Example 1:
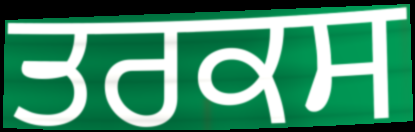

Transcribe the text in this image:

ਤਰਕਸ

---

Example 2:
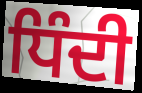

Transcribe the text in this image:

ਧਿੰਦੀ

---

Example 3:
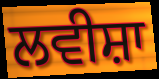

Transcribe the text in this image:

ਲਵੀਸ਼ਾ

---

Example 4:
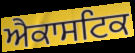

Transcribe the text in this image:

ਐਕਾਸਟਿਕ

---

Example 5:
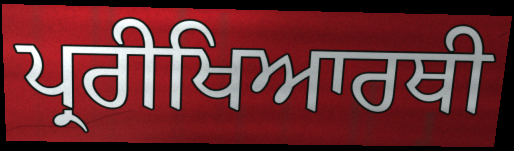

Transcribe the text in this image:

ਪ੍ਰਰੀਖਿਆਰਥੀ